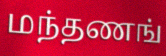
மந்தணங்